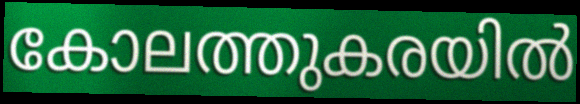
കോലത്തുകരയിൽ